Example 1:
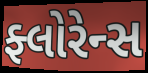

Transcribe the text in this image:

ફ્લોરેન્સ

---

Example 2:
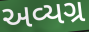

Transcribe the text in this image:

અવ્યગ્ર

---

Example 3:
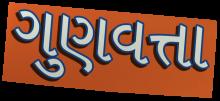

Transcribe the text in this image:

ગુણવત્તા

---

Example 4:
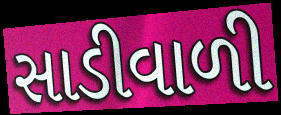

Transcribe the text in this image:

સાડીવાળી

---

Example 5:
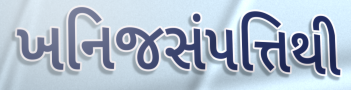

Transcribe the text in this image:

ખનિજસંપત્તિથી